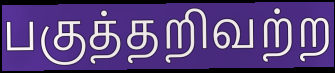
பகுத்தறிவற்ற